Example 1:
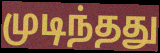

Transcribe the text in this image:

முடிந்தது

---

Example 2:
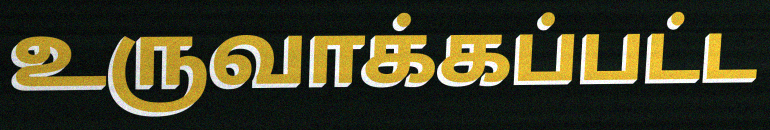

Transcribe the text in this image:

உருவாக்கப்பட்ட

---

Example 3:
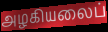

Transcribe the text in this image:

அழகியலைப்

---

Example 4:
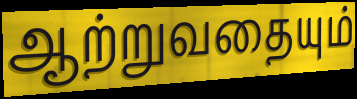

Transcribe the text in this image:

ஆற்றுவதையும்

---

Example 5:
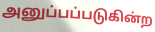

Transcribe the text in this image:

அனுப்பப்படுகின்ற